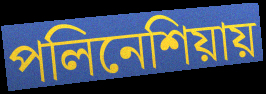
পলিনেশিয়ায়